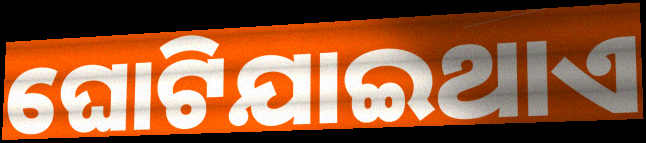
ଘୋଟିଯାଇଥାଏ